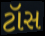
ટૉસ